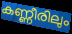
കണ്ണീരിലും